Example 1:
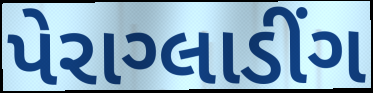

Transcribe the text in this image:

પેરાગ્લાડીંગ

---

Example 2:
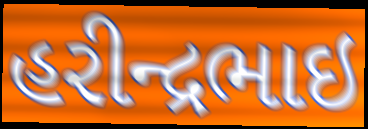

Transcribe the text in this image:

હરીન્દ્રભાઇ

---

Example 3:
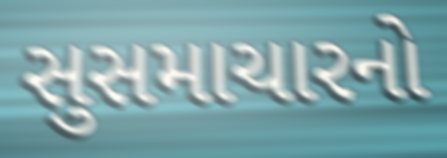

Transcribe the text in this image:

સુસમાચારનો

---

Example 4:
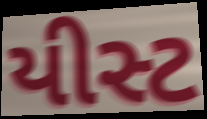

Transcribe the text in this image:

યીસ્ટ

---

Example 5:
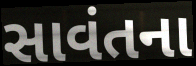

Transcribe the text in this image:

સાવંતના